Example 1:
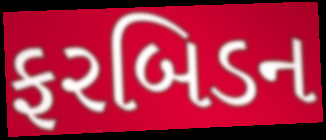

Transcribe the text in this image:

ફરબિડન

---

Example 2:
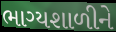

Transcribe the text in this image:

ભાગ્યશાળીને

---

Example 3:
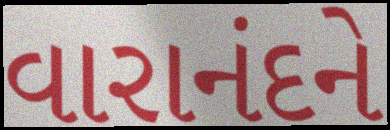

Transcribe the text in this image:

વારાનંદને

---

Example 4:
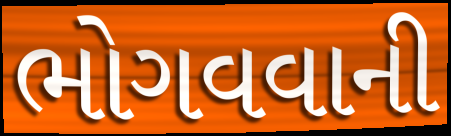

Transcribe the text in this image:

ભોગવવાની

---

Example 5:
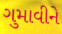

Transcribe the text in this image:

ગુમાવીને